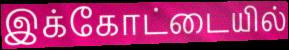
இக்கோட்டையில்